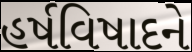
હર્ષવિષાદને